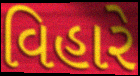
વિહારે